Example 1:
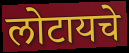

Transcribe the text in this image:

लोटायचे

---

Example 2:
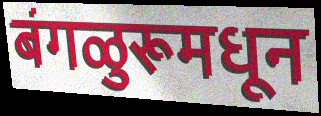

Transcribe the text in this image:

बंगळुरूमधून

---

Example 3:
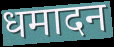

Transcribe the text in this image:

धमादन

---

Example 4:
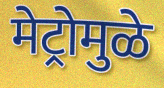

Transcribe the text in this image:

मेट्रोमुळे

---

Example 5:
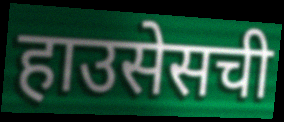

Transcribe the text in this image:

हाउसेसची